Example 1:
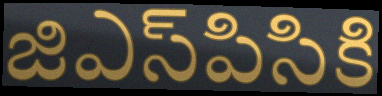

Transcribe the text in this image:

జిఎస్‌పిసికి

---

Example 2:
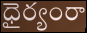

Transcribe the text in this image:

ధైర్యంరా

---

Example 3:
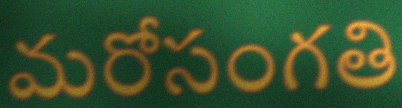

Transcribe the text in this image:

మరోసంగతి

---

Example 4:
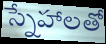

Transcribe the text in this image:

స్నేహాలతో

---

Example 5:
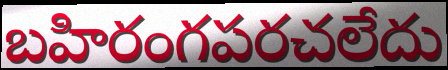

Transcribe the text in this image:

బహిరంగపరచలేదు